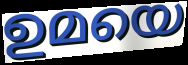
ഉമയെ